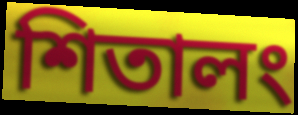
শিতালং